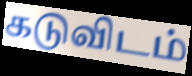
கடுவிடம்